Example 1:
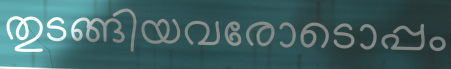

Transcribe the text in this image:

തുടങ്ങിയവരോടൊപ്പം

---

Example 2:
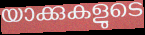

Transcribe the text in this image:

യാക്കുകളുടെ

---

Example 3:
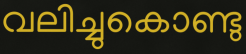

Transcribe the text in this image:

വലിച്ചുകൊണ്ടു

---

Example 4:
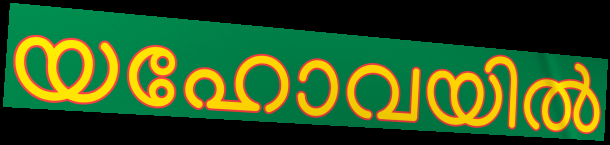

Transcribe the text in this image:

യഹോവയിൽ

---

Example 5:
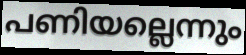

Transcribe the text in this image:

പണിയല്ലെന്നും